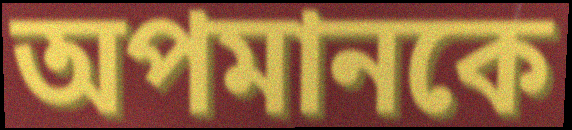
অপমানকে